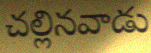
చల్లినవాడు